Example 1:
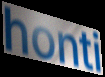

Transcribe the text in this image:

honti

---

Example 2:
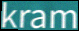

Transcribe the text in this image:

kram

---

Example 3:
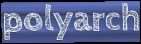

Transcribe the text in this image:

polyarch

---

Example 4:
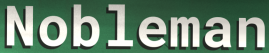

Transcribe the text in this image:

Nobleman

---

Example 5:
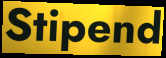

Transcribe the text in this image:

Stipend